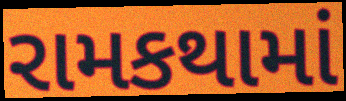
રામકથામાં